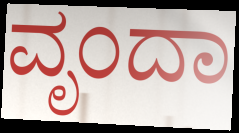
ವೃಂದಾ